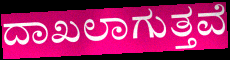
ದಾಖಲಾಗುತ್ತವೆ